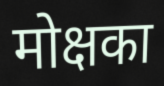
मोक्षका